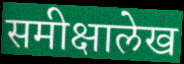
समीक्षालेख